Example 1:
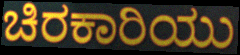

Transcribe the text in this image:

ಚಿರಕಾರಿಯು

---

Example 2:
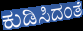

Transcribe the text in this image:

ಕುಡಿಸಿದಂತೆ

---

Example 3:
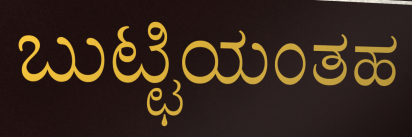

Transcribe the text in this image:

ಬುಟ್ಟಿಯಂತಹ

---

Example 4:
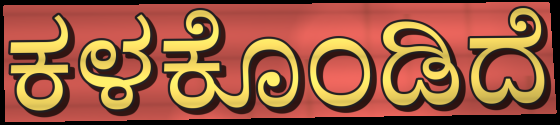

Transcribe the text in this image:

ಕಳಕೊಂಡಿದೆ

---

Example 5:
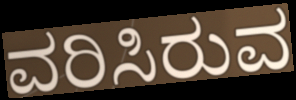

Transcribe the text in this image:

ವರಿಸಿರುವ